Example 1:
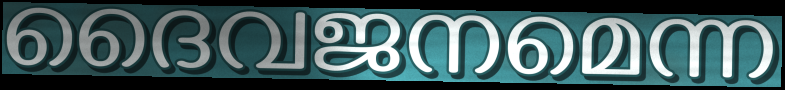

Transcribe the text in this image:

ദൈവജനമെന്ന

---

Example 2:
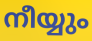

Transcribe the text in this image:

നീയ്യും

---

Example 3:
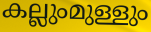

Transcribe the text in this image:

കല്ലുംമുള്ളും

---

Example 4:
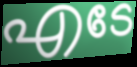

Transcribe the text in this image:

എടേ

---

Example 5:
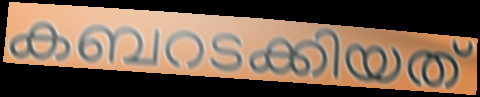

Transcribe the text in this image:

കബറടക്കിയത്